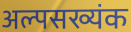
अल्पसख्यंक